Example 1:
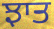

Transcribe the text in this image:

ਝਾਤ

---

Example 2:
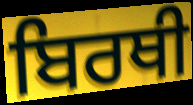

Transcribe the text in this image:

ਬਿਰਥੀ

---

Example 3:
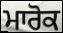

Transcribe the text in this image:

ਮਾਰੋਕ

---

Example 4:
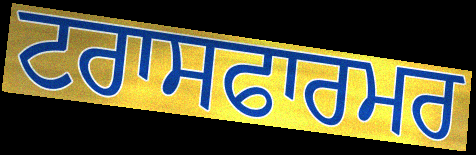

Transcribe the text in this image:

ਟਰਾਸਫਾਰਮਰ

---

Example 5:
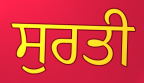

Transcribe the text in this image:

ਸੁਰਤੀ